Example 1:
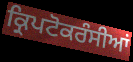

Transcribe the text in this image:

ਕ੍ਰਿਪਟੋਕਰੰਸੀਆਂ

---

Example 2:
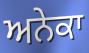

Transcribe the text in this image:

ਅਨੇਕਾ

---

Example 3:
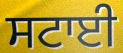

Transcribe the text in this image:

ਸਟਾਈ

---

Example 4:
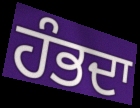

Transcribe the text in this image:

ਹੰਭਦਾ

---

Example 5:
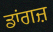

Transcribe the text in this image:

ਡਾਂਗਜ਼